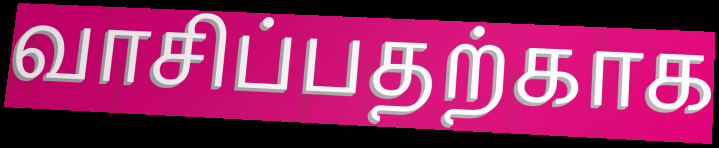
வாசிப்பதற்காக